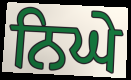
ਨਿਘੇ